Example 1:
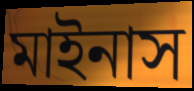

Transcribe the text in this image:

মাইনাস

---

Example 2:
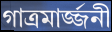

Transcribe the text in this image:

গাত্রমার্জ্জনী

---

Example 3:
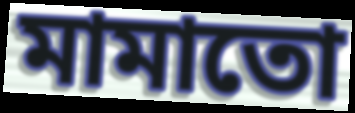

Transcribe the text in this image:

মামাতো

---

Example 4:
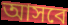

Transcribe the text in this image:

আসবে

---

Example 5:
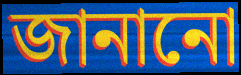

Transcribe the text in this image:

জানানো